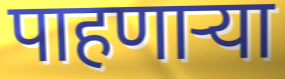
पाहणार्‍या